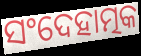
ସଂଦେହାତ୍ମକ